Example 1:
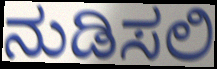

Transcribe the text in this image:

ನುಡಿಸಲಿ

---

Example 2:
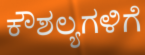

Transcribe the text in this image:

ಕೌಶಲ್ಯಗಳಿಗೆ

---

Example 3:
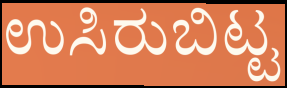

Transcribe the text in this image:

ಉಸಿರುಬಿಟ್ಟ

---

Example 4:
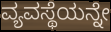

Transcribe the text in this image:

ವ್ಯವಸ್ಥೆಯನ್ನೇ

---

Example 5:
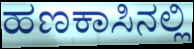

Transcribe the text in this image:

ಹಣಕಾಸಿನಲ್ಲಿ